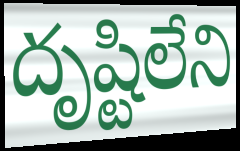
దృష్టిలేని